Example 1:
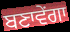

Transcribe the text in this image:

ਬਣਾਵੇਂਗਾ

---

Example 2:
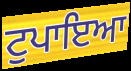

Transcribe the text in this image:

ਟੁਪਾਇਆ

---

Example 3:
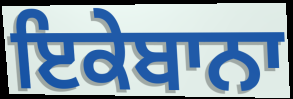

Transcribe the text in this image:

ਇਕੇਬਾਨਾ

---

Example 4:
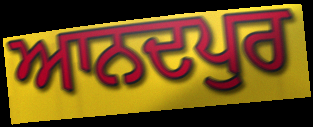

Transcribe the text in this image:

ਆਨਦਪੁਰ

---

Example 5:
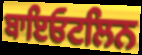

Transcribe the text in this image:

ਬਾਇਓਟਲਿਨ